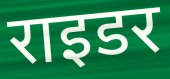
राइडर